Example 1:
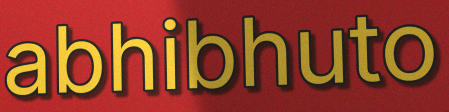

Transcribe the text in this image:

abhibhuto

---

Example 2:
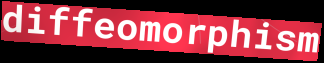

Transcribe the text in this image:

diffeomorphism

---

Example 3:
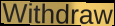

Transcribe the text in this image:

Withdraw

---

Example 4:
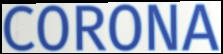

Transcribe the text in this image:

CORONA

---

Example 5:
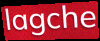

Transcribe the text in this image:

lagche